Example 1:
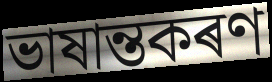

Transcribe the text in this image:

ভাষান্তকৰণ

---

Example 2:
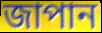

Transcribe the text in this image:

জাপান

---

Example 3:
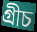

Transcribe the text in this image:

গ্ৰীচ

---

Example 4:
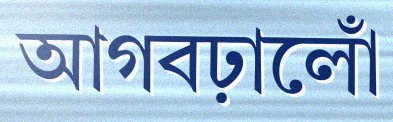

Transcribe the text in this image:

আগবঢ়ালোঁ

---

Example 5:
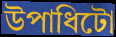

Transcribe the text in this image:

উপাধিটো